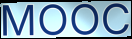
MOOC